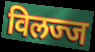
विलज्ज